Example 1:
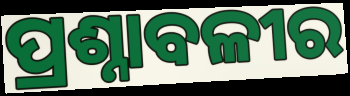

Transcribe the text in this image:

ପ୍ରଶ୍ନାବଳୀର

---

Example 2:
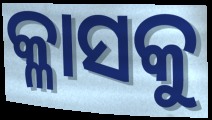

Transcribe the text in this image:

କ୍ଳାସକୁ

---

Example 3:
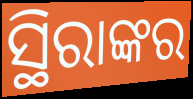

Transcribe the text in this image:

ସ୍ଥିରାଙ୍କର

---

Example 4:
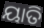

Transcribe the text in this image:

ୟାତି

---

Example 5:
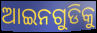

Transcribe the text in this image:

ଆଇନଗୁଡିକୁ